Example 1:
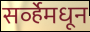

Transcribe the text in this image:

सर्व्हेमधून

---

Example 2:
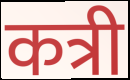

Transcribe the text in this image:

कत्री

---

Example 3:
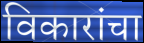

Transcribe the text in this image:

विकारांचा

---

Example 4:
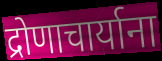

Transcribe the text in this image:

द्रोणाचार्याना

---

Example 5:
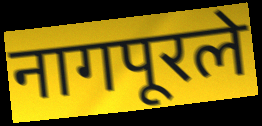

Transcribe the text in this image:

नागपूरले